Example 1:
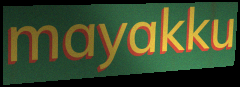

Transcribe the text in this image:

mayakku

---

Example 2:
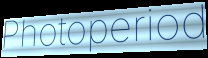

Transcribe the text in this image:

Photoperiod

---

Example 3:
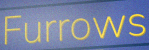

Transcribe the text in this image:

Furrows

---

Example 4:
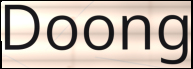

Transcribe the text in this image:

Doong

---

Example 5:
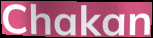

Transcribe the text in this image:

Chakan